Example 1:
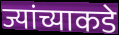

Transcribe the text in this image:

ज्यांच्याकडे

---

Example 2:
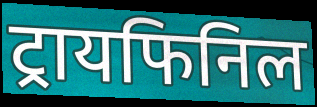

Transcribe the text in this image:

ट्रायफिनिल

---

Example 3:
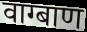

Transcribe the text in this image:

वाग्बाण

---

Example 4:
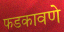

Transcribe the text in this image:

फडकावणे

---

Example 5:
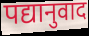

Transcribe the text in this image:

पद्यानुवाद